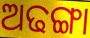
ଅଢଙ୍ଗା